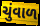
ચુંવાળ